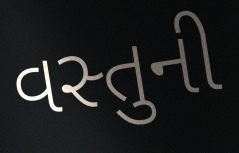
વસ્તુની